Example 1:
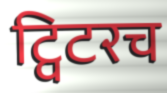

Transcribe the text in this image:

ट्विटरच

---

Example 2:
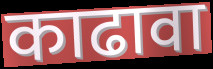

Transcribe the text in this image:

काढावा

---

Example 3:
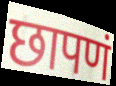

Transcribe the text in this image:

छापणं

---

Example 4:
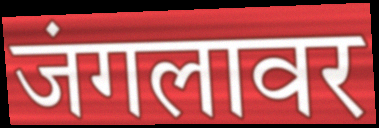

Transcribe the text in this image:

जंगलावर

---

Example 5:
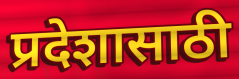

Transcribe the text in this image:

प्रदेशासाठी